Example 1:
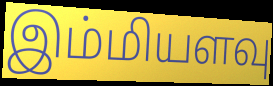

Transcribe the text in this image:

இம்மியளவு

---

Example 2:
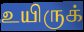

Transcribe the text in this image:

உயிருக்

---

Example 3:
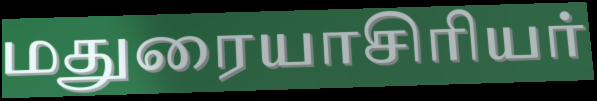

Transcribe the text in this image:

மதுரையாசிரியர்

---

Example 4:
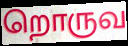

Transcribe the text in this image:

றொருவ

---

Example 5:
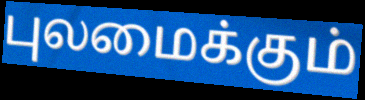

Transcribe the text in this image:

புலமைக்கும்